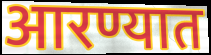
आरण्यात